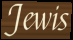
Jewis